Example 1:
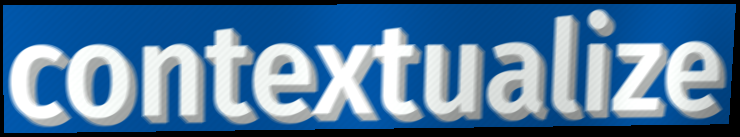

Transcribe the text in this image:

contextualize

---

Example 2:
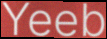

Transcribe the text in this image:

Yeeb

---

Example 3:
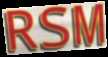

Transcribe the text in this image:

RSM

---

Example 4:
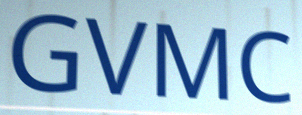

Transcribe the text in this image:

GVMC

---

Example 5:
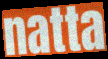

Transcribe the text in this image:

natta